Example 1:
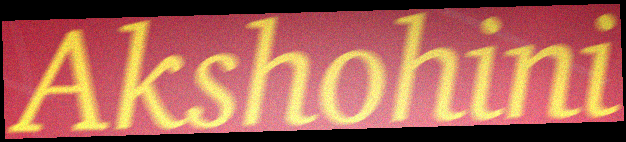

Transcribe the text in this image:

Akshohini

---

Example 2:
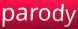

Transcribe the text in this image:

parody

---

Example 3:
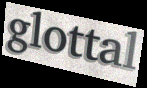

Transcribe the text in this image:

glottal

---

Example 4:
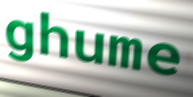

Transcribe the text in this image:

ghume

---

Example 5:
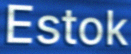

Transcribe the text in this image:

Estok